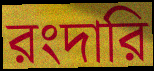
রংদারি